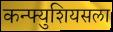
कन्फ्युशियसला